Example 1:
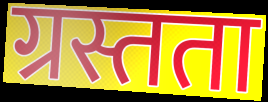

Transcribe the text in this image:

ग्रस्तता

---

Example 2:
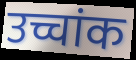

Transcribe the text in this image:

उच्चांक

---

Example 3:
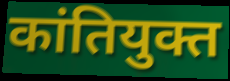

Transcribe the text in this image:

कांतियुक्त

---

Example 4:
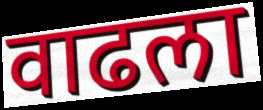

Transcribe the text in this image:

वाढला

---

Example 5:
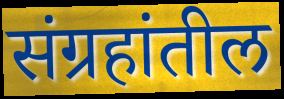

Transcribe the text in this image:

संग्रहांतील